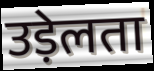
उड़ेलता